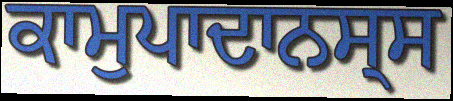
ਕਾਮੁਪਾਦਾਨਸ੍ਸ